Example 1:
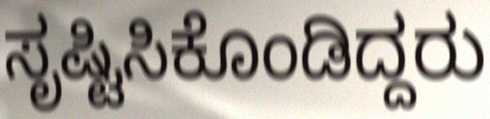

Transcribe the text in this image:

ಸೃಷ್ಟಿಸಿಕೊಂಡಿದ್ದರು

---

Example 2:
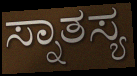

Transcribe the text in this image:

ಸ್ನಾತಸ್ಯ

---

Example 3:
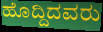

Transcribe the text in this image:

ಹೊದ್ದಿದವರು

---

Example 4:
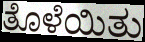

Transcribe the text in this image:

ತೊಳೆಯಿತು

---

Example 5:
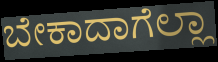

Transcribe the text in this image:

ಬೇಕಾದಾಗೆಲ್ಲಾ